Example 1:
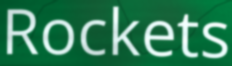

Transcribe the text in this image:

Rockets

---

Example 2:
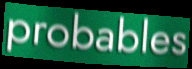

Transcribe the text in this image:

probables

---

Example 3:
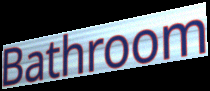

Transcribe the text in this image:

Bathroom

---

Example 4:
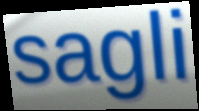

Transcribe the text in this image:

sagli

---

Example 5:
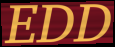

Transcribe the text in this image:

EDD